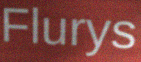
Flurys